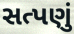
સત્પણું